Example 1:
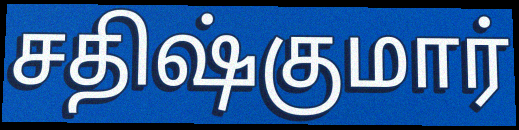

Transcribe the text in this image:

சதிஷ்குமார்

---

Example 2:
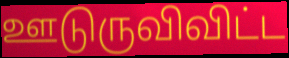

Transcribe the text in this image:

ஊடுருவிவிட்ட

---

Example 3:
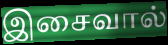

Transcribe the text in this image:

இசைவால்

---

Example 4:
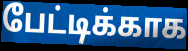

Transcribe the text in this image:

பேட்டிக்காக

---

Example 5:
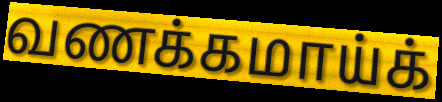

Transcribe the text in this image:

வணக்கமாய்க்